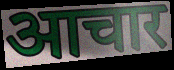
आचार